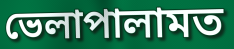
ভেলাপালামত